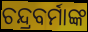
ଚନ୍ଦ୍ରବର୍ମାଙ୍କ